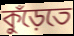
কুঁড়েতে